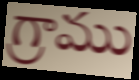
గ్రాము